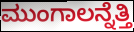
ಮುಂಗಾಲನ್ನೆತ್ತಿ